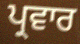
ਪ੍ਰਵਾਰ